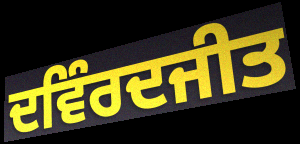
ਦਵਿੰਰਦਜੀਤ